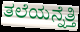
ತಲೆಯನ್ನೆತ್ತಿ